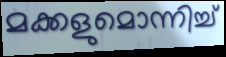
മക്കളുമൊന്നിച്ച്